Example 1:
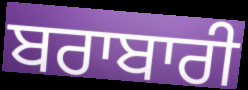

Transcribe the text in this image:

ਬਰਾਬਾਰੀ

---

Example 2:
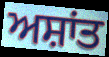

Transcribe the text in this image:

ਅਸ਼ਾਂਤ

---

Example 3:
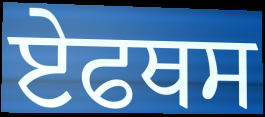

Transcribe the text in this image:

ਏਫਥਸ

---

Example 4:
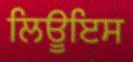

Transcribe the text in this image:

ਲਿਊਇਸ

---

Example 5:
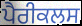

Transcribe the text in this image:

ਪੈਰੀਕਲਸ